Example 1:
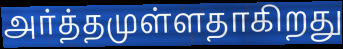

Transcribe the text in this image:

அர்த்தமுள்ளதாகிறது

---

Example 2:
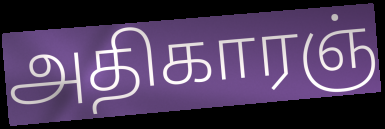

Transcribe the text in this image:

அதிகாரஞ்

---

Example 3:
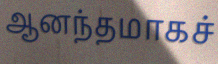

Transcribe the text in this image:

ஆனந்தமாகச்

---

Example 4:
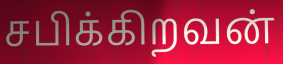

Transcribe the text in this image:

சபிக்கிறவன்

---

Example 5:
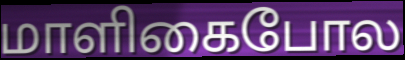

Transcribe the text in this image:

மாளிகைபோல